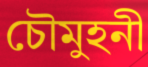
চৌমুহনী